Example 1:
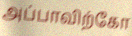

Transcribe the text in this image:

அப்பாவிற்கோ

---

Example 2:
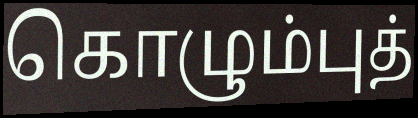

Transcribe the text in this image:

கொழும்புத்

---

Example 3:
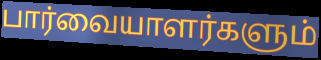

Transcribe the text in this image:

பார்வையாளர்களும்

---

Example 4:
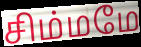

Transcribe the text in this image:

சிம்மமே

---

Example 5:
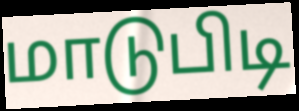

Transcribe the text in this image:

மாடுபிடி